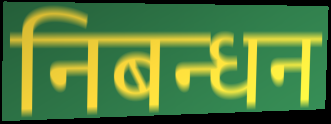
निबन्धन